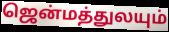
ஜென்மத்துலயும்